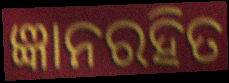
ଜ୍ଞାନରହିତ